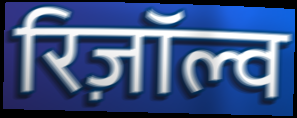
रिज़ॉल्व